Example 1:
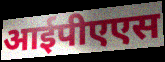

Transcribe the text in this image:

आईपीएएस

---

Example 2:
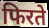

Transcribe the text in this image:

फिरते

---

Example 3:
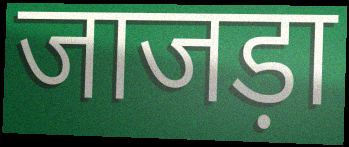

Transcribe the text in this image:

जाजड़ा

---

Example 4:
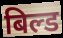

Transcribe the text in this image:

बिल्ड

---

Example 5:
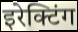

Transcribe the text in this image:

इरेक्टिंग